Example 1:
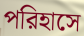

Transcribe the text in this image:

পরিহাসে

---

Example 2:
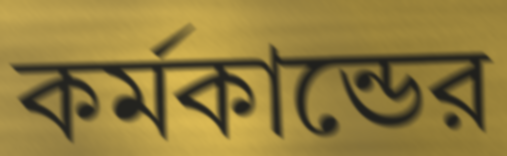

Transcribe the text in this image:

কর্মকান্ডের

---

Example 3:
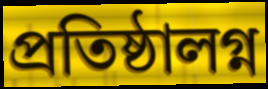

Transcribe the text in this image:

প্রতিষ্ঠালগ্ন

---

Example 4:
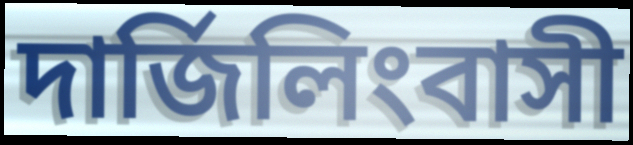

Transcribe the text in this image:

দার্জিলিংবাসী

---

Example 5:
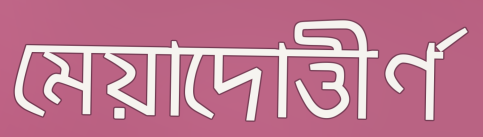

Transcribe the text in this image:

মেয়াদোত্তীর্ণ